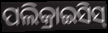
ପଲିକ୍ରାଇସିସ୍